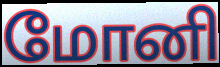
மோனி